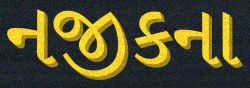
નજીકના